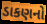
ડાકણનો